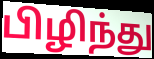
பிழிந்து